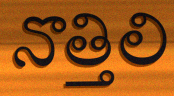
నొత్తిలి